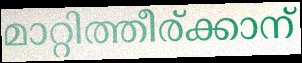
മാറ്റിത്തീര്ക്കാന്